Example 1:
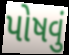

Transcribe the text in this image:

પોષવું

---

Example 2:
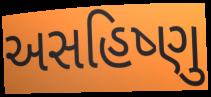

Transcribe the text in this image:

અસહિષ્ણુ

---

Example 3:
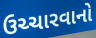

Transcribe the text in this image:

ઉચ્ચારવાનો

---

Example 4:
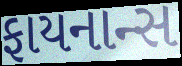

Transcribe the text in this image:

ફાયનાન્સ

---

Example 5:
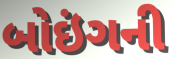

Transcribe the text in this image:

બોઇંગની